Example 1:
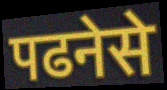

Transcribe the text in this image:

पढनेसे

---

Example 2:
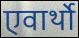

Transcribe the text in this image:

एवार्थो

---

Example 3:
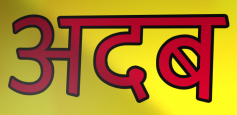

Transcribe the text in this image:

अदब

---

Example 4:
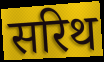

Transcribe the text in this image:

सरिथ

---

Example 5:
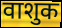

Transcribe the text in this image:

वाशुक